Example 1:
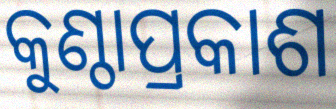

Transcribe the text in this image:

କୁଣ୍ଠାପ୍ରକାଶ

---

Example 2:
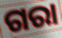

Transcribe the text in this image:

ଗରା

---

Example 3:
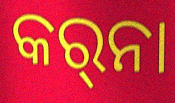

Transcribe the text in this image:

କର୍‍ନା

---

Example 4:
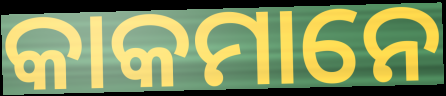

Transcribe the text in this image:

କାକମାନେ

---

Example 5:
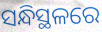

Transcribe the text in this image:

ସନ୍ଧିସ୍ଥଳରେ